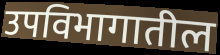
उपविभागातील